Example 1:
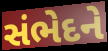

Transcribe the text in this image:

સંભેદને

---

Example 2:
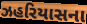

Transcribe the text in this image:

ઝહરિયાસના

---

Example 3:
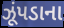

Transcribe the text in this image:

ઝૂંપડાના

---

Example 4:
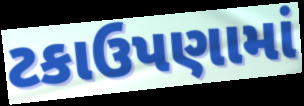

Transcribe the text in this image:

ટકાઉપણામાં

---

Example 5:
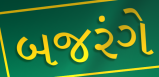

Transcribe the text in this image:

બજરંગે